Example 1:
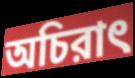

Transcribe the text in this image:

অচিরাৎ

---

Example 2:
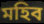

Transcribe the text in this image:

মহিব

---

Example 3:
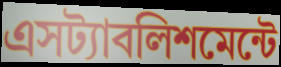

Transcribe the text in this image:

এসট্যাবলিশমেন্টে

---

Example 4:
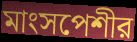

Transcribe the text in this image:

মাংসপেশীর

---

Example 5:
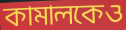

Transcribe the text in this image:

কামালকেও